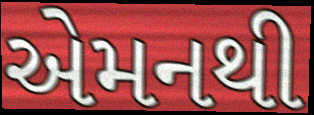
એમનથી